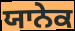
ਯਾਨੇਕ